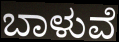
ಬಾಳುವೆ